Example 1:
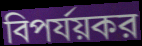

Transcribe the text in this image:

বিপর্যয়কর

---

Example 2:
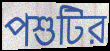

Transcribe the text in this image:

পশুটির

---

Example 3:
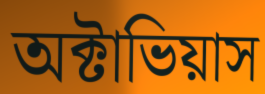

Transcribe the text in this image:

অক্টাভিয়াস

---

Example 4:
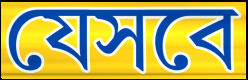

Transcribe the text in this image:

যেসবে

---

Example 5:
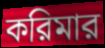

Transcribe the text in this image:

করিমার